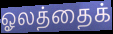
ஓலத்தைக்